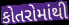
કોતરોમાંથી